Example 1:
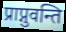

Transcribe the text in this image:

प्राप्नुवन्ति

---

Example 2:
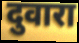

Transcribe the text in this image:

दुवारा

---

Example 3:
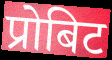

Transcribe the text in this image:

प्रोबिट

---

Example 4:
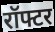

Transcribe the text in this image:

रॉफ्टर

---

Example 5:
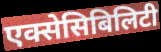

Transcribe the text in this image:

एक्सेसिबिलिटी